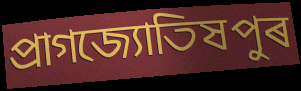
প্ৰাগজ্যোতিষপুৰ